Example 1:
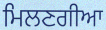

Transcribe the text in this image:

ਮਿਲਣਗੀਆ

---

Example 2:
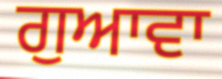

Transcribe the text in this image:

ਗੁਆਵਾ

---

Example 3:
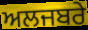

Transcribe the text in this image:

ਅਲਜਬਰੇ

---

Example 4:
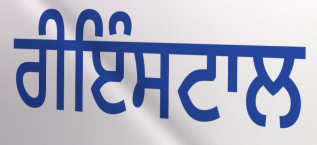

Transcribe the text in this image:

ਰੀਇੰਸਟਾਲ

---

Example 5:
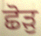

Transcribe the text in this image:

ਛੋੜੁ